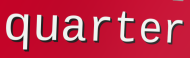
quarter